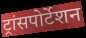
ट्रांसपोर्टेशन